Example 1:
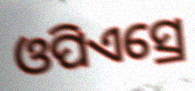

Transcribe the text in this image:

ଓପିଏସ୍ରେ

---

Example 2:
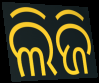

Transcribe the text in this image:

ଲିଜି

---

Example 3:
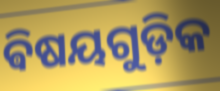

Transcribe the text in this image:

ଵିଷୟଗୁଡ଼ିକ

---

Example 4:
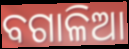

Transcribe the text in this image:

ବଗାଳିଆ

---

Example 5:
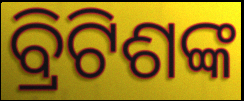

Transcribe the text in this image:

ବ୍ରିଟିଶଙ୍କ